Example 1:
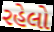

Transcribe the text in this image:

રહેલો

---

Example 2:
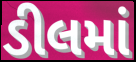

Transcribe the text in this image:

ડીલમાં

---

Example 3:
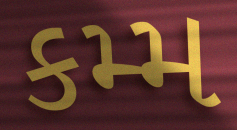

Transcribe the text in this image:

કમ્મ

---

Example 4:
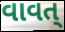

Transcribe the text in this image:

વાવત્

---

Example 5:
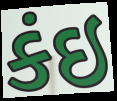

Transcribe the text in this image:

કંઇ